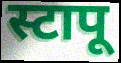
स्टापू